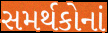
સમર્થકોનાં